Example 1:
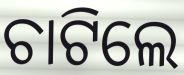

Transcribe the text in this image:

ଚାଟିଲେ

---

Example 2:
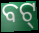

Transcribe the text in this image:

ବଟ୍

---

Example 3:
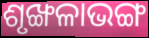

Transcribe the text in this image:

ଶୃଙ୍ଖଳାଭଙ୍ଗ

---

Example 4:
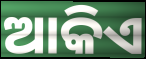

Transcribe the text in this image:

ଆକିଏ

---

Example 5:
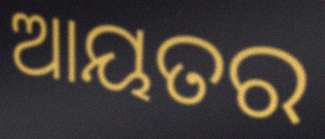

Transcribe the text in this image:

ଆୟତର